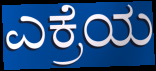
ಎಕ್ರೆಯ